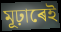
মূঢ়াৰেই